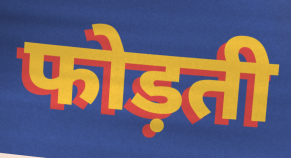
फोड़ती